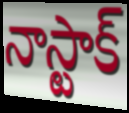
నాస్టాక్